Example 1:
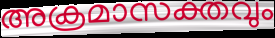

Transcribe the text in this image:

അക്രമാസക്തവും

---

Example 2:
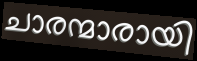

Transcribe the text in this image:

ചാരന്മാരായി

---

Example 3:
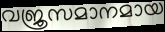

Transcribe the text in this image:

വജ്രസമാനമായ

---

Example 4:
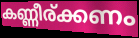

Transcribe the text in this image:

കണ്ണീര്ക്കണം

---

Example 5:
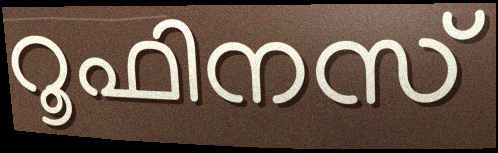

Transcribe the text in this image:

റൂഫിനസ്